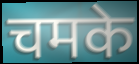
चमके